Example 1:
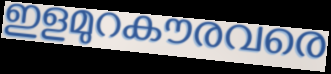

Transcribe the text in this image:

ഇളമുറകൗരവരെ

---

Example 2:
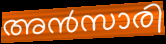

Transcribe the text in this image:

അൻസാരി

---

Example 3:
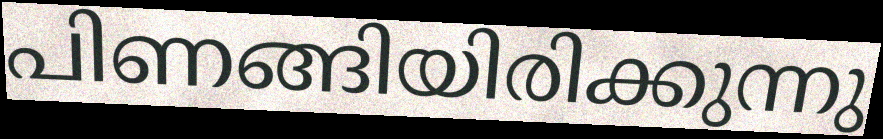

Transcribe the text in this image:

പിണങ്ങിയിരിക്കുന്നു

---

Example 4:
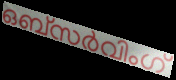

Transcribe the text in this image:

ഒബ്സർവിംഗ്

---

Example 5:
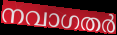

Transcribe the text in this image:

നവാഗതർ